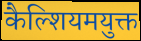
कैल्शियमयुक्त